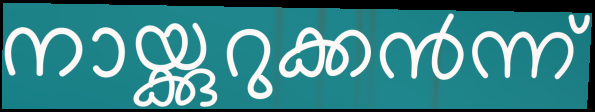
നായ്ക്കുറുക്കൻന്ന്